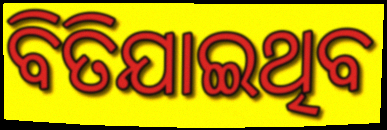
ବିତିଯାଇଥିବ